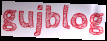
gujblog